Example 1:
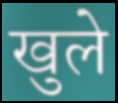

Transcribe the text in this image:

खुले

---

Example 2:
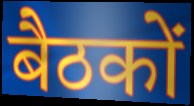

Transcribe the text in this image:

बैठकों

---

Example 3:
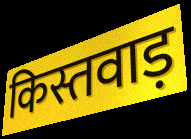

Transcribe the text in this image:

किस्तवाड़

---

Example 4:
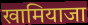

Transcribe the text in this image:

खामियाजा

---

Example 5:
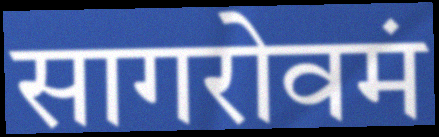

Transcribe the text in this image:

सागरोवमं